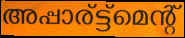
അപ്പാര്ട്ട്മെന്റ്